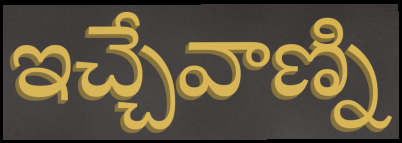
ఇచ్చేవాణ్ని